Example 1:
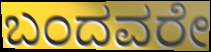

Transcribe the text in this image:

ಬಂದವರೇ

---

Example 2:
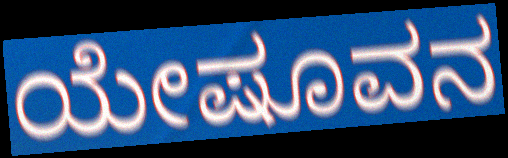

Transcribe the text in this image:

ಯೇಷೂವನ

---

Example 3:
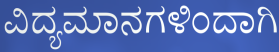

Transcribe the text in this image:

ವಿದ್ಯಮಾನಗಳಿಂದಾಗಿ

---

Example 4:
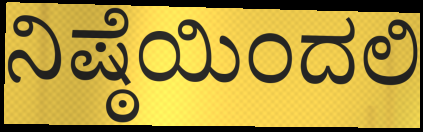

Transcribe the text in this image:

ನಿಷ್ಠೆಯಿಂದಲಿ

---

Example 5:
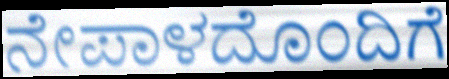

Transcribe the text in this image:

ನೇಪಾಳದೊಂದಿಗೆ